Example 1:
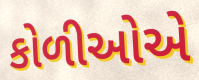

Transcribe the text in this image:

કોળીઓએ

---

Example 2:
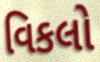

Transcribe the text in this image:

વિકલો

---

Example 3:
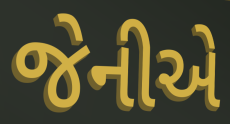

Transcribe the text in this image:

જેનીએ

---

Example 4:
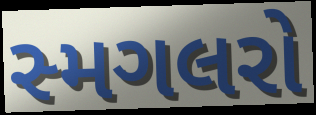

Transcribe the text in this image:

સ્મગલરો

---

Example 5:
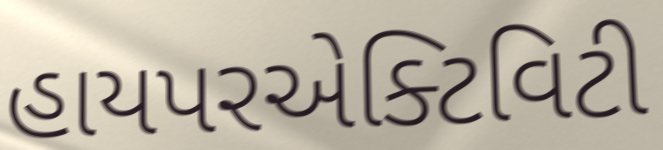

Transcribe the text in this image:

હાયપરએક્ટિવિટી